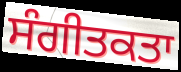
ਸੰਗੀਤਕਤਾ